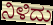
ನಿಳಿದು